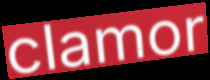
clamor